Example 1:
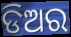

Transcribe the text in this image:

ଡିଅର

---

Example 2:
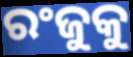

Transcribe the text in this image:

ରଂଜୁକୁ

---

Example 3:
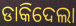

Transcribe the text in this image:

ଡାକିଦେଲା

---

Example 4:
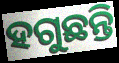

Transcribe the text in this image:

ହଗୁଛନ୍ତି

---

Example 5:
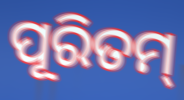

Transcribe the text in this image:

ପୂରିତମ୍